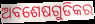
ଅବଶେଷଗୁଡିକର